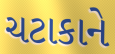
ચટાકાને